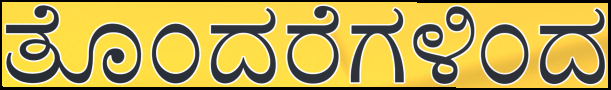
ತೊಂದರೆಗಳಿಂದ